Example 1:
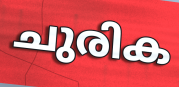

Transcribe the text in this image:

ചുരിക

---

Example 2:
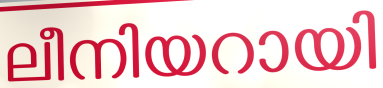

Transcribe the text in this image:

ലീനിയറായി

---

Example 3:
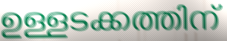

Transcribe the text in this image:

ഉള്ളടക്കത്തിന്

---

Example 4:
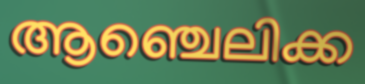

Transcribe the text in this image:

ആഞ്ചെലിക്ക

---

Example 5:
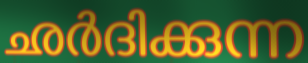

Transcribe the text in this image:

ഛർദിക്കുന്ന